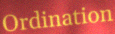
Ordination